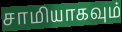
சாமியாகவும்